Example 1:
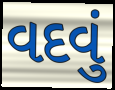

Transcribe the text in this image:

વદવું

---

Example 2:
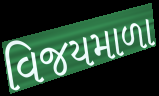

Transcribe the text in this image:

વિજયમાળા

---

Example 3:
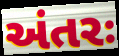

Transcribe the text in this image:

અંતરઃ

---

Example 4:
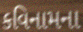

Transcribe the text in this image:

કવિનામના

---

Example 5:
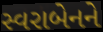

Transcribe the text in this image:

સ્વરાબેનને